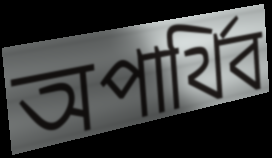
অপার্থিব